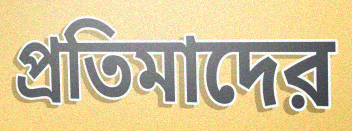
প্রতিমাদের